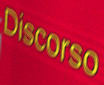
Discorso